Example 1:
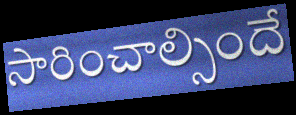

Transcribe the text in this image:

సారించాల్సిందే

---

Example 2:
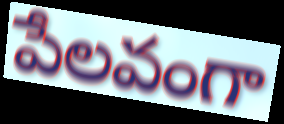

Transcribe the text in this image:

పేలవంగా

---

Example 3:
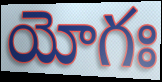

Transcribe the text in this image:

యోగః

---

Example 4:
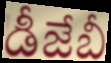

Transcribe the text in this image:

డీజేబీ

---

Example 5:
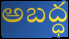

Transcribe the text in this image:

అబద్ధ